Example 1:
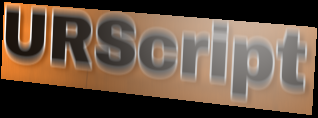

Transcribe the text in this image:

URScript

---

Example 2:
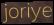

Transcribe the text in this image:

joriye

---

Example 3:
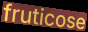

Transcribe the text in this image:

fruticose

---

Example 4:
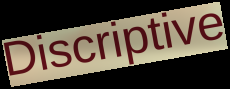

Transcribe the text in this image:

Discriptive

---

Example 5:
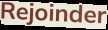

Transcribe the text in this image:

Rejoinder